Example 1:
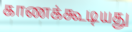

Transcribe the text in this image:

காணக்கூடியது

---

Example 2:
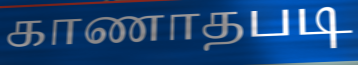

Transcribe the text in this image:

காணாதபடி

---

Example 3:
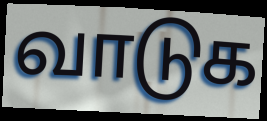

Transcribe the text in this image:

வாடுக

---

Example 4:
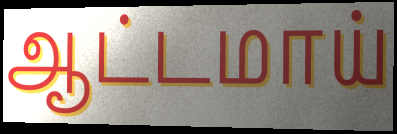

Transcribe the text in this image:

ஆட்டமாய்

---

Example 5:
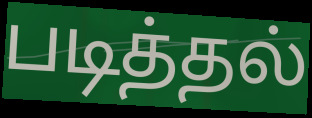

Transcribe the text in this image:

படித்தல்